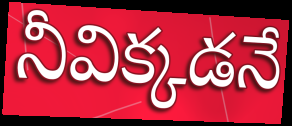
నీవిక్కడనే